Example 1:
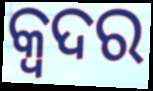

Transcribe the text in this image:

କ୍ୱଦର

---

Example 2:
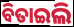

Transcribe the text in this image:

ବିତାଇଲି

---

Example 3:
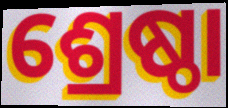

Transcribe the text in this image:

ଶ୍ରେଷ୍ଠା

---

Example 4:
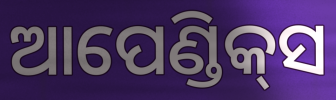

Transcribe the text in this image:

ଆପେଣ୍ଡିକ୍‌ସ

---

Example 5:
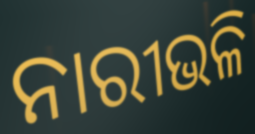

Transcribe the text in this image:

ନାରୀଭଳି